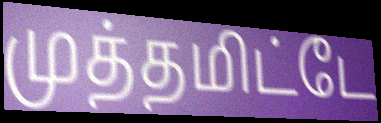
முத்தமிட்டே